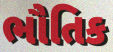
ભૌતિક